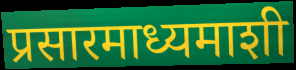
प्रसारमाध्यमाशी